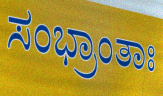
ಸಂಭ್ರಾಂತಾಃ